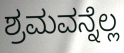
ಶ್ರಮವನ್ನೆಲ್ಲ